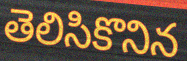
తెలిసికొనిన